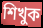
শিখুক